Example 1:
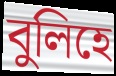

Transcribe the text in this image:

বুলিহে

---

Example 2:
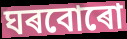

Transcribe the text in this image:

ঘৰবোৰো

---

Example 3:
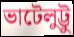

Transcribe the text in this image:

ভাটেলুট্টু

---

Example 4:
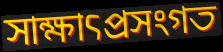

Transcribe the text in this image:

সাক্ষাৎপ্ৰসংগত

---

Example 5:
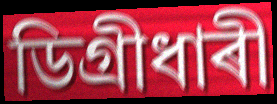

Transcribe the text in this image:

ডিগ্ৰীধাৰী